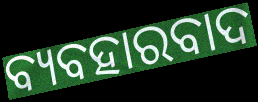
ବ୍ୟବହାରବାଦ